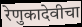
रेणुकादेवीचा